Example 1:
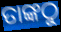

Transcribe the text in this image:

ତାଙ୍କଠୁ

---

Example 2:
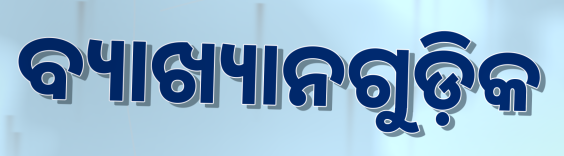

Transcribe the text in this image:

ବ୍ୟାଖ୍ୟାନଗୁଡ଼ିକ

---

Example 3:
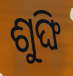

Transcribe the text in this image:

ଶୁଙ୍ଘି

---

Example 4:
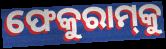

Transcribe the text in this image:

ଫେକୁରାମ୍‌କୁ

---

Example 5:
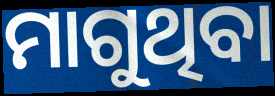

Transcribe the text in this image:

ମାଗୁଥିବା